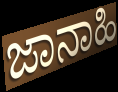
ಜಾನಾಹಿ